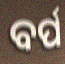
ବର୍ପ